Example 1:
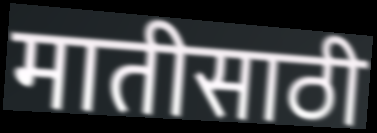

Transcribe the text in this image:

मातीसाठी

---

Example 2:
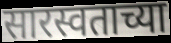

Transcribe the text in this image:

सारस्वताच्या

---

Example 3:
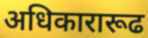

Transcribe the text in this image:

अधिकारारूढ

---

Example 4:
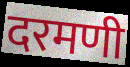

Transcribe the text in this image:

दरमणी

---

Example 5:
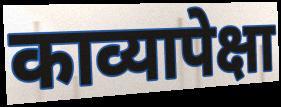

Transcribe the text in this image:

काव्यापेक्षा